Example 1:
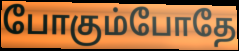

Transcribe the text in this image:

போகும்போதே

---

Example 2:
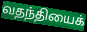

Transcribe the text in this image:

வதந்தியைக்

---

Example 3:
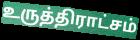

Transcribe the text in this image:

உருத்திராட்சம்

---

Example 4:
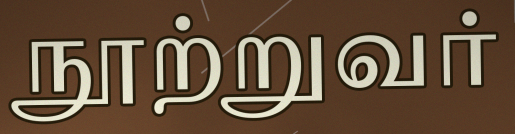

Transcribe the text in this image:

நூற்றுவர்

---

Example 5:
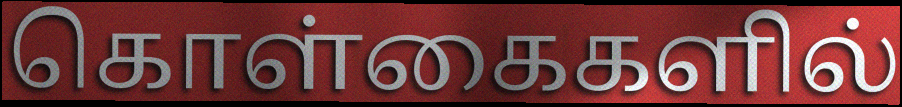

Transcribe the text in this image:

கொள்கைகளில்